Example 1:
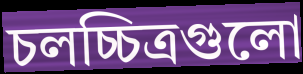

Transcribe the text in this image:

চলচ্চিত্রগুলো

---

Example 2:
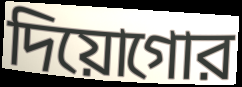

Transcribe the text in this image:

দিয়োগোর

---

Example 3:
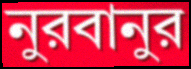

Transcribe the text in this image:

নুরবানুর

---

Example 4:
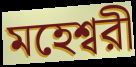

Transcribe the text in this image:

মহেশ্বরী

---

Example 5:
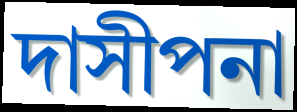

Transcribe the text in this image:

দাসীপনা